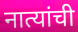
नात्यांची